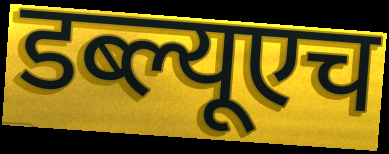
डब्ल्यूएच